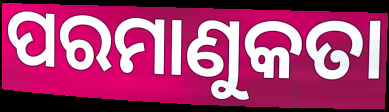
ପରମାଣୁକତା